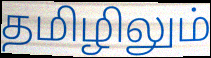
தமிழிலும்